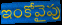
ఇంకోవైపు